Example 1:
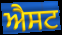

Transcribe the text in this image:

ਐਸਟ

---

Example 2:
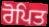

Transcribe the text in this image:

ਰੋਪਿਤ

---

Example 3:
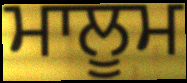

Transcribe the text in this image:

ਮਾਲੂਮ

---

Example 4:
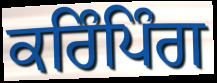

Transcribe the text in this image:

ਕਰਿੰਪਿੰਗ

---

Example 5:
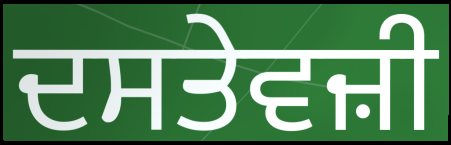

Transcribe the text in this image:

ਦਸਤੇਵਜ਼ੀ